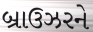
બ્રાઉઝરને